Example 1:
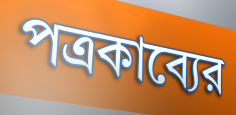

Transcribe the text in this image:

পত্রকাব্যের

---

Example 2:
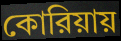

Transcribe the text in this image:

কোরিয়ায়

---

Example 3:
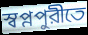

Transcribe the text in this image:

স্বপ্নপুরীতে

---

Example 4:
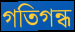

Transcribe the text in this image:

গতিগন্ধ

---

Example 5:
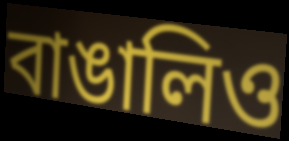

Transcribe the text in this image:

বাঙালিও